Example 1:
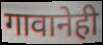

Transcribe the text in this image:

गावानेही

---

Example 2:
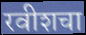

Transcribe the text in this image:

रवीशचा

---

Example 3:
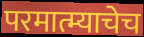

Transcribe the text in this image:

परमात्म्याचेच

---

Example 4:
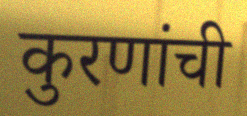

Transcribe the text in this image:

कुरणांची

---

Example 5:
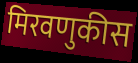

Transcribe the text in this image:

मिरवणुकीस